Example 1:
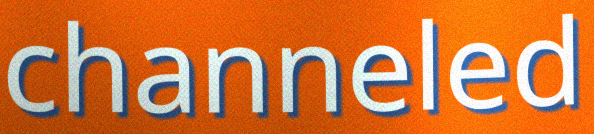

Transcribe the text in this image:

channeled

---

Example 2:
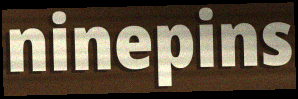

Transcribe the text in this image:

ninepins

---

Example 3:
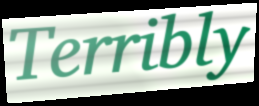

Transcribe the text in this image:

Terribly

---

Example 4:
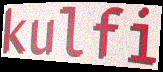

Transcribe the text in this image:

kulfi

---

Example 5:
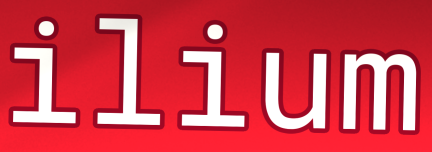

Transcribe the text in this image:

ilium